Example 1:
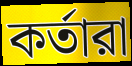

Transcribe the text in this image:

কর্তারা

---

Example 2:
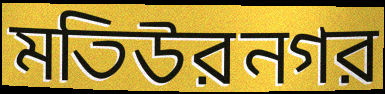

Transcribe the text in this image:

মতিউরনগর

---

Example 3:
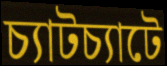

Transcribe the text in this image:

চ্যাটচ্যাটে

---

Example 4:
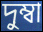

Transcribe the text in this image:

দুম্বা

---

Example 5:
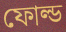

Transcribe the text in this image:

ফোল্ড